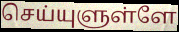
செய்யுளுள்ளே